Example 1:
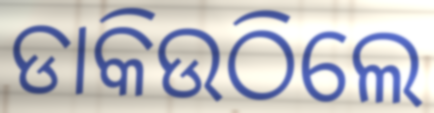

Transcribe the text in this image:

ଡାକିଉଠିଲେ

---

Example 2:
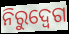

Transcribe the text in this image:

ନିରୁଦ୍ବେଗ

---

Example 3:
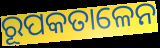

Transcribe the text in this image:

ରୂପକତାଳେନ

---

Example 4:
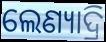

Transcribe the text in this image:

ଲେଣ୍ୟାଦ୍ରି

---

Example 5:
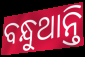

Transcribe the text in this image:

ବନ୍ଧୁଥାନ୍ତି